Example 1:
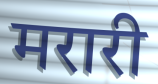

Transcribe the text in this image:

मरारी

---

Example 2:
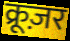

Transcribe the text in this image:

क्रूज़र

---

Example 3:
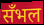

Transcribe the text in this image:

सँभल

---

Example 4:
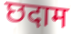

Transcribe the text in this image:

छदाम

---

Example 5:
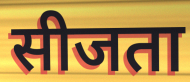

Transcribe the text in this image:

सीजता